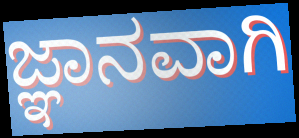
ಜ್ಞಾನವಾಗಿ